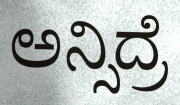
ಅನ್ಸಿದ್ರೆ